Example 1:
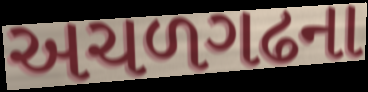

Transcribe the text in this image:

અચળગઢના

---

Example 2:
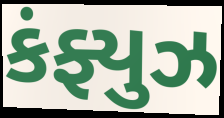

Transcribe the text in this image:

કંફ્યુઝ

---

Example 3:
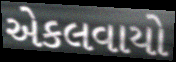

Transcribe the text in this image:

એકલવાયો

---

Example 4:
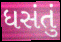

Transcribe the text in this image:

ધસંતું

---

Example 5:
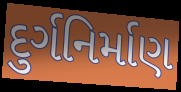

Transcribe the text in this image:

દુર્ગનિર્માણ